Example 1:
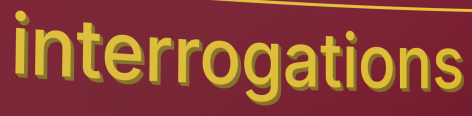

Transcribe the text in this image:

interrogations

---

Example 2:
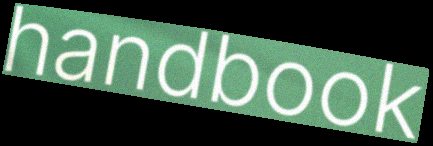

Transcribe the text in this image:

handbook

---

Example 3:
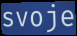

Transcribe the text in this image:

svoje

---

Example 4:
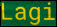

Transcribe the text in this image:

Lagi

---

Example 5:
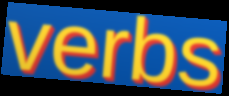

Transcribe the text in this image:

verbs